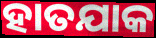
ହାତଯାକ